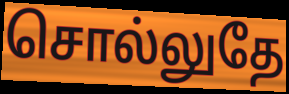
சொல்லுதே